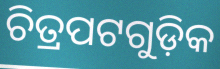
ଚିତ୍ରପଟଗୁଡ଼ିକ